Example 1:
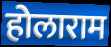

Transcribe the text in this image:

होलाराम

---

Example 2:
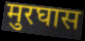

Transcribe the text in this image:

मुरघास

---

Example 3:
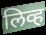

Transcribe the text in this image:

लिव्ह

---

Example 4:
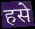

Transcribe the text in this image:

हसे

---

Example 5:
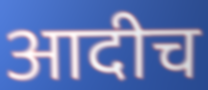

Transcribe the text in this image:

आदीच